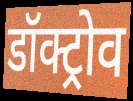
डॉक्ट्रोव